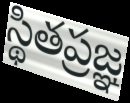
స్థితప్రజ్ఞ